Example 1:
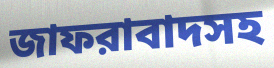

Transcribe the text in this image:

জাফরাবাদসহ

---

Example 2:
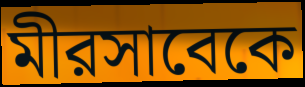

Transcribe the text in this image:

মীরসাবেকে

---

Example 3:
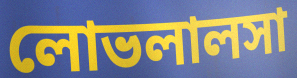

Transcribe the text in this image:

লোভলালসা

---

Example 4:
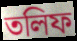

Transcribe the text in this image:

তলিফ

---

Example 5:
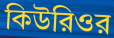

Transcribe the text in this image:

কিউরিওর